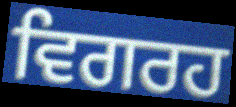
ਵਿਗਰਹ